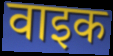
वाइक